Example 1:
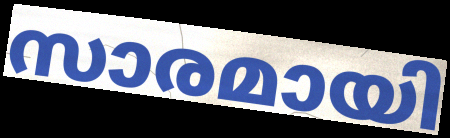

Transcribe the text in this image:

സാരമായി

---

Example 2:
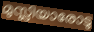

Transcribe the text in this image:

മുസ്ലിയാരോടു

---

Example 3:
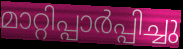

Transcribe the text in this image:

മാറ്റിപ്പാർപ്പിച്ചു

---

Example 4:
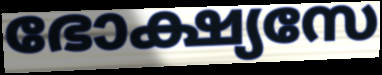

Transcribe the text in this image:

ഭോക്ഷ്യസേ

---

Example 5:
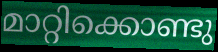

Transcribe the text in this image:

മാറ്റിക്കൊണ്ടു